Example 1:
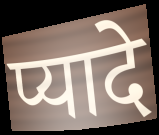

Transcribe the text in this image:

प्यादे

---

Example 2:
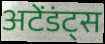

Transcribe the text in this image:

अटेंडंट्स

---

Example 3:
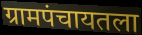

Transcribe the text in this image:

ग्रामपंचायतला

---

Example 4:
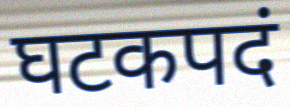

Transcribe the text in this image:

घटकपदं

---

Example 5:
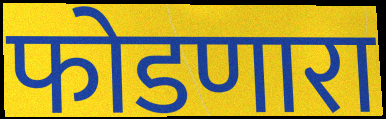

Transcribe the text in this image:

फोडणारा